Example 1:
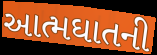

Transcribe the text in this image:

આત્મઘાતની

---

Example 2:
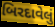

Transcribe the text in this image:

બિરદાવેલું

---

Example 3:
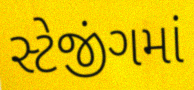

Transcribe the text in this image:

સ્ટેજીંગમાં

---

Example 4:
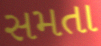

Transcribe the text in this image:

સમતા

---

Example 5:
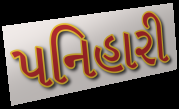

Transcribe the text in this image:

પનિહારી